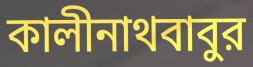
কালীনাথবাবুর